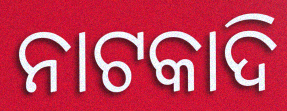
ନାଟକାଦି